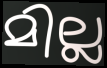
മില്ല